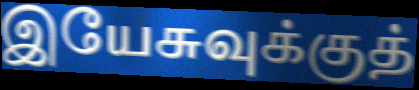
இயேசுவுக்குத்